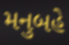
મનુબહે